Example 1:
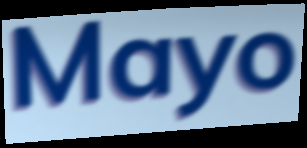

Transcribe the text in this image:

Mayo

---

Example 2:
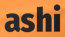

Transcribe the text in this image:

ashi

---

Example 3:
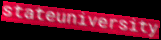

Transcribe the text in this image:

stateuniversity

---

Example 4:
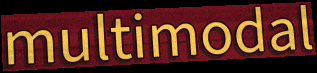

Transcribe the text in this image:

multimodal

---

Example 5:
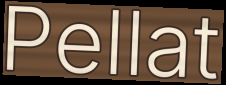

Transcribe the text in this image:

Pellat